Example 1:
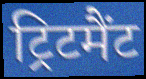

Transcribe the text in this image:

ट्रिटमैंट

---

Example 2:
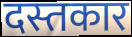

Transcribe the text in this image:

दस्‍तकार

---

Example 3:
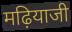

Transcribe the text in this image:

मढ़ियाजी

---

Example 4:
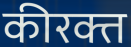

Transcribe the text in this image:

कीरक्त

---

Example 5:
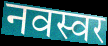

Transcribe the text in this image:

नवस्वर